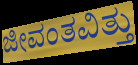
ಜೀವಂತವಿತ್ತು